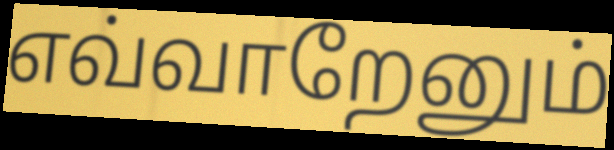
எவ்வாறேனும்